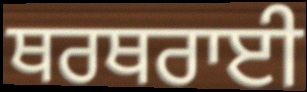
ਥਰਥਰਾਈ